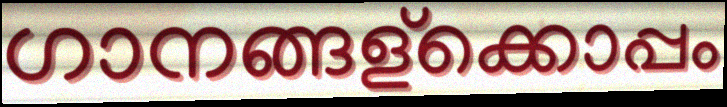
ഗാനങ്ങള്ക്കൊപ്പം